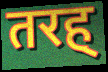
तरह्